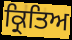
ਕ੍ਰਿਤਿਅ